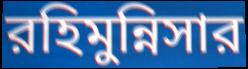
রহিমুন্নিসার